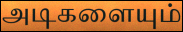
அடிகளையும்